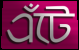
এঁটে